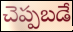
చెప్పబడే